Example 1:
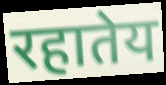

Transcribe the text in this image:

रहातेय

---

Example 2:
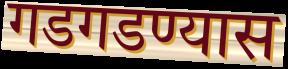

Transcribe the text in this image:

गडगडण्यास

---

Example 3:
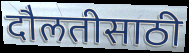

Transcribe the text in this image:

दौलतीसाठी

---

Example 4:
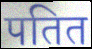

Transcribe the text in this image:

पतित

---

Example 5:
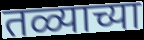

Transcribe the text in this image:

तळ्याच्या